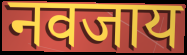
नवजाय